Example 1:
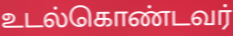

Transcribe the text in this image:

உடல்கொண்டவர்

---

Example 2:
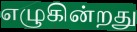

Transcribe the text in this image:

எழுகின்றது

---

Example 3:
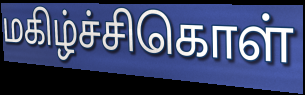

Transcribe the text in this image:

மகிழ்ச்சிகொள்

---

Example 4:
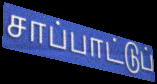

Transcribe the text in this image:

சாப்பாட்டுப்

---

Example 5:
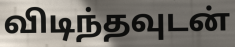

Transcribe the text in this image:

விடிந்தவுடன்